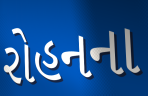
રોહનના